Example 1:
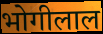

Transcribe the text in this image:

भोगीलाल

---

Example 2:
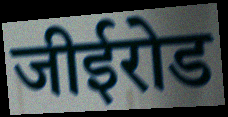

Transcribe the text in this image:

जीईरोड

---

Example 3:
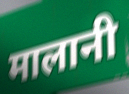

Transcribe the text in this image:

मालानी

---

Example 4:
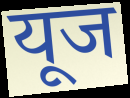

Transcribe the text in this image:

यूज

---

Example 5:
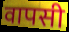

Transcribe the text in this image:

वापसी